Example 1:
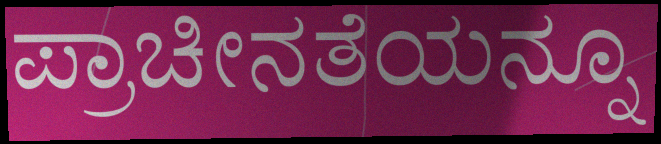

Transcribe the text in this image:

ಪ್ರಾಚೀನತೆಯನ್ನೂ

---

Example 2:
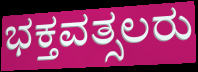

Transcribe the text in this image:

ಭಕ್ತವತ್ಸಲರು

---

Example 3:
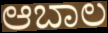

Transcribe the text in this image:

ಆಬಾಲ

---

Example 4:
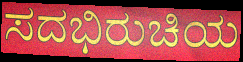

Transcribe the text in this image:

ಸದಭಿರುಚಿಯ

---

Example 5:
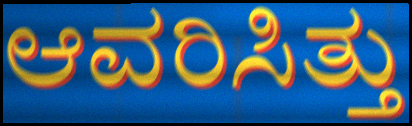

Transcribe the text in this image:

ಆವರಿಸಿತ್ತು